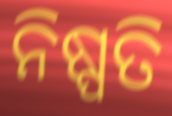
ନିଷ୍ପତି